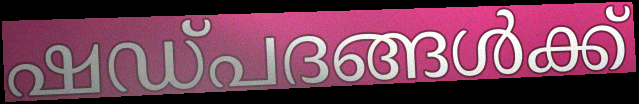
ഷഡ്പദങ്ങൾക്ക്